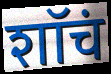
शॉचं